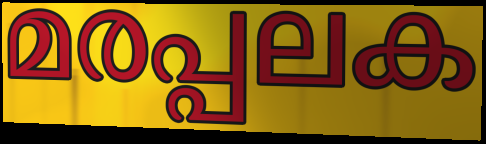
മരപ്പലക